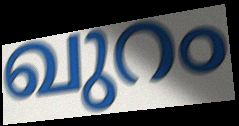
ഖുറം